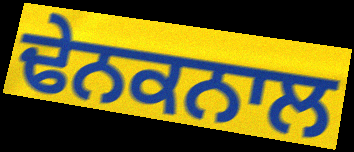
ਢੇਨਕਨਾਲ